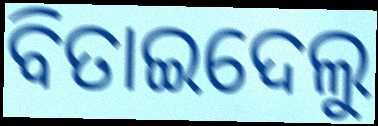
ବିତାଇଦେଲୁ